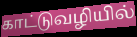
காட்டுவழியில்